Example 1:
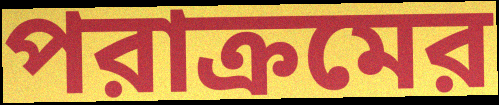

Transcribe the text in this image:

পরাক্রমের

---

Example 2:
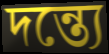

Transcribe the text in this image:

দন্ত্যে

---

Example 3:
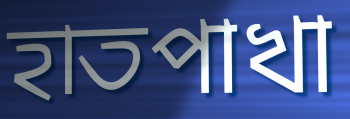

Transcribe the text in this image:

হাতপাখা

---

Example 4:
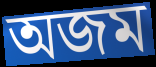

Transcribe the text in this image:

অজম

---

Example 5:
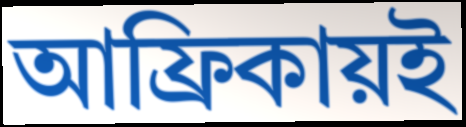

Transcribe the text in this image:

আফ্রিকায়ই